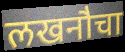
लखनौचा